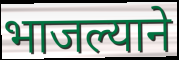
भाजल्याने